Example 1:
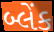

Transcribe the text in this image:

બ્લેંક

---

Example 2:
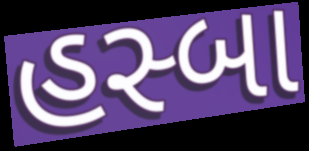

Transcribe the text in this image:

હસ્બા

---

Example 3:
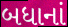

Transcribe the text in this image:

બધાનાં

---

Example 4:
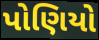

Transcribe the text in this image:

પોણિયો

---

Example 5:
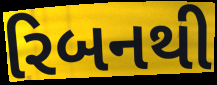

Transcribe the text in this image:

રિબનથી